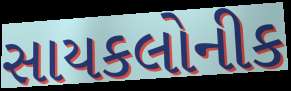
સાયકલોનીક